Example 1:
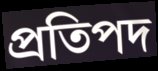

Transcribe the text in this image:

প্ৰতিপদ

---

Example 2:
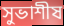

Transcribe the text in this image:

সুভাশীষ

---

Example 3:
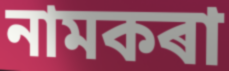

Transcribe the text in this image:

নামকৰা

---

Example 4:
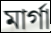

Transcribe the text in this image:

মাৰ্গা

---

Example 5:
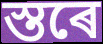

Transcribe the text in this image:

স্তৰে